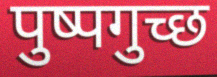
पुष्पगुच्छ